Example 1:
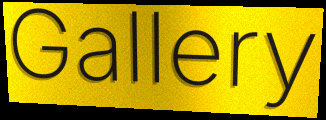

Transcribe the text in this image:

Gallery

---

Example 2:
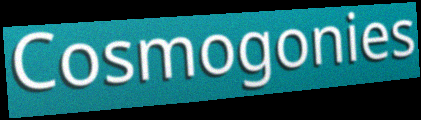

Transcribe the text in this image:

Cosmogonies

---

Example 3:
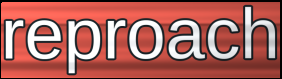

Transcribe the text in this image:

reproach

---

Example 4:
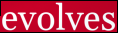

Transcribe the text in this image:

evolves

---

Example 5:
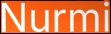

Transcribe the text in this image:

Nurmi